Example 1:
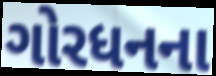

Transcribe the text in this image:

ગોરધનના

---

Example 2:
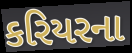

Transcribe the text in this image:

કરિયરના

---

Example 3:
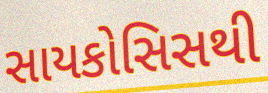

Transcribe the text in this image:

સાયકોસિસથી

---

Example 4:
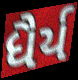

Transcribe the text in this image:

ધૈર્ય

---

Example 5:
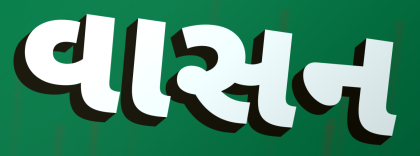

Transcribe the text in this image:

વાસન